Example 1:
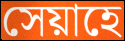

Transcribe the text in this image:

সেয়াহে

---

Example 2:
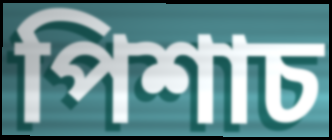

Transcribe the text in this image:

পিশাচ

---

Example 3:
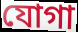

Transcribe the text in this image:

যোগা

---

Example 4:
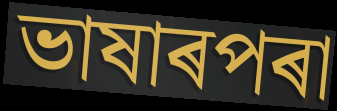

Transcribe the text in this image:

ভাষাৰপৰা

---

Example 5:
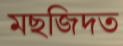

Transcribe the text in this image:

মছজিদত